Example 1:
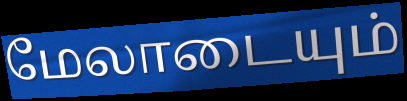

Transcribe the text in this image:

மேலாடையும்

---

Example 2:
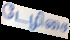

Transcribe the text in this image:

டேழிசை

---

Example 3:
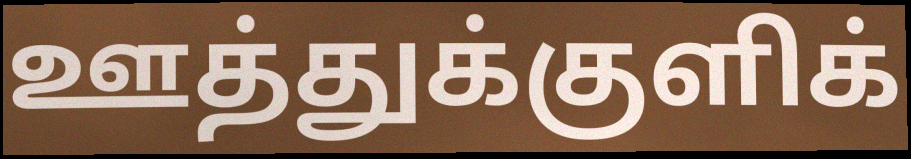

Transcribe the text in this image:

ஊத்துக்குளிக்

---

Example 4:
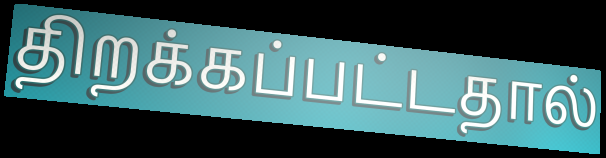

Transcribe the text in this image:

திறக்கப்பட்டதால்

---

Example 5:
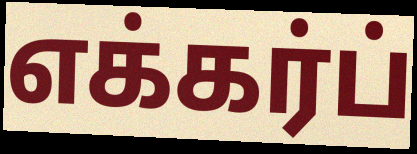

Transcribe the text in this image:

எக்கர்ப்